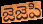
జెజెపి